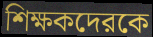
শিক্ষকদেরকে